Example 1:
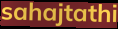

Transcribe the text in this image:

sahajtathi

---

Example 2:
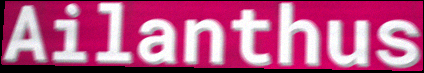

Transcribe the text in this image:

Ailanthus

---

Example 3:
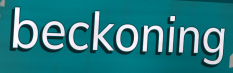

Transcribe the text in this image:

beckoning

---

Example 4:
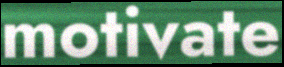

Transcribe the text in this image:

motivate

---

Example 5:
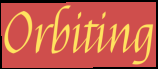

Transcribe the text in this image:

Orbiting